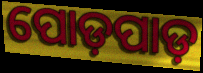
ପୋଡ଼ପାଡ଼